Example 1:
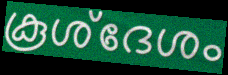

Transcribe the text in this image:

കൂശ്ദേശം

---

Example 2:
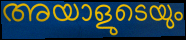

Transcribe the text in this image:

അയാളുടെയും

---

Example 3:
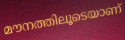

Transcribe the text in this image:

മൗനത്തിലൂടെയാണ്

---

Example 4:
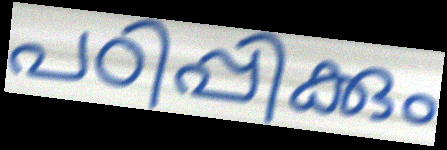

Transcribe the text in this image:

പഠിപ്പിക്കും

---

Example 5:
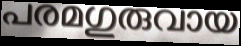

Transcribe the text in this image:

പരമഗുരുവായ